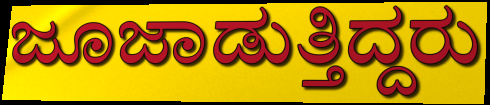
ಜೂಜಾಡುತ್ತಿದ್ದರು